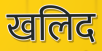
खलिद